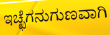
ಇಚ್ಛೆಗನುಗುಣವಾಗಿ